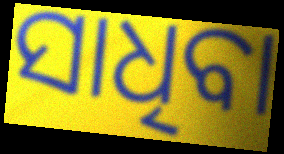
ସାଧିବା